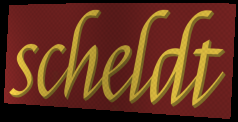
scheldt